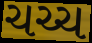
ચચ્ચ